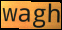
wagh